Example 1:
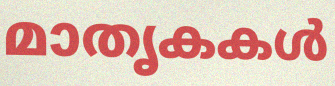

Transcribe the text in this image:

മാതൃകകൾ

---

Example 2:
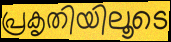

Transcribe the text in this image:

പ്രകൃതിയിലൂടെ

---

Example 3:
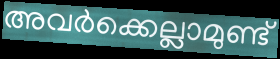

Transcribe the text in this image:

അവർക്കെല്ലാമുണ്ട്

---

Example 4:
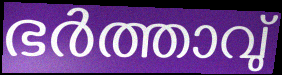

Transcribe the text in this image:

ഭർത്താവു്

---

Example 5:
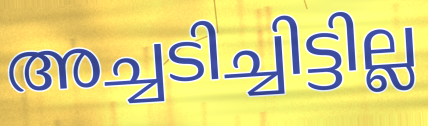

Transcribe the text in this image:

അച്ചടിച്ചിട്ടില്ല